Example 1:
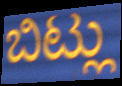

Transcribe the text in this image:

ಬಿಟ್ಲು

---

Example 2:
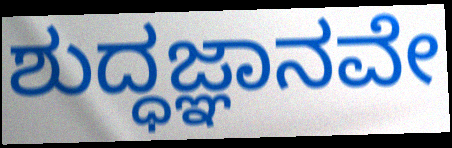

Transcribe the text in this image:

ಶುದ್ಧಜ್ಞಾನವೇ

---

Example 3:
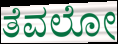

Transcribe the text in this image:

ತೆವಲೋ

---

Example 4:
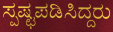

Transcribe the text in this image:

ಸ್ಪಷ್ಟಪಡಿಸಿದ್ದರು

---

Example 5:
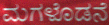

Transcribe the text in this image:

ಮಗಳೊಡನೆ